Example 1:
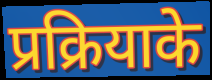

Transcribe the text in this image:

प्रक्रियाके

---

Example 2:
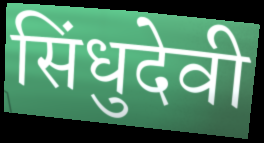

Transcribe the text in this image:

सिंधुदेवी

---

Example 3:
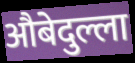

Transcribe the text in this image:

औबेदुल्ला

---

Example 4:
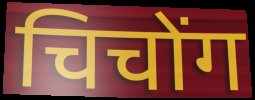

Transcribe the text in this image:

चिचोंग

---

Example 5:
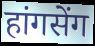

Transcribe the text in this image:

हांगसेंग